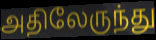
அதிலேருந்து